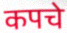
कपचे